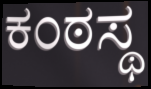
ಕಂಠಸ್ಥ